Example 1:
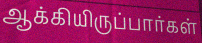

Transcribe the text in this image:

ஆக்கியிருப்பார்கள்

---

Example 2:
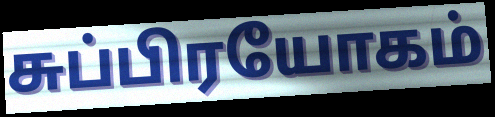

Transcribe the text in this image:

சுப்பிரயோகம்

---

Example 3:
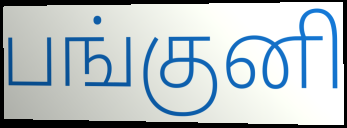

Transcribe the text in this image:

பங்குனி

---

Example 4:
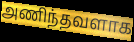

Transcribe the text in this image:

அணிந்தவளாக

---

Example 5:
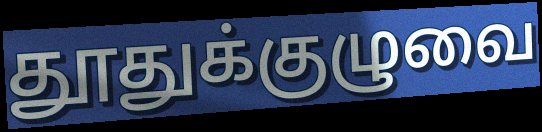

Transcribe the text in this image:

தூதுக்குழுவை